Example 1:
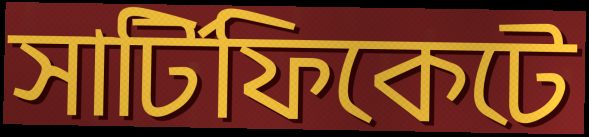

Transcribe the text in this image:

সার্টিফিকেটে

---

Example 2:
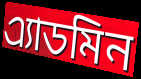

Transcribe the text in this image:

এ্যাডমিন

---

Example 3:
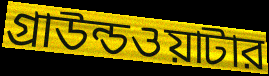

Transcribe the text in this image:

গ্রাউন্ডওয়াটার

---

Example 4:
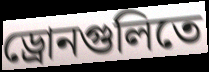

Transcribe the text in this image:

ড্রোনগুলিতে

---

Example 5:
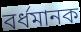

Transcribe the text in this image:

বর্ধমানক